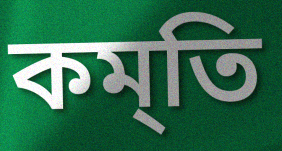
কম্‌তি